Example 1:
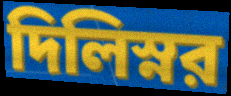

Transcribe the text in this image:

দিলিস্নর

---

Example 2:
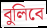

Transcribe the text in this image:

বুলিবে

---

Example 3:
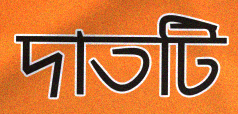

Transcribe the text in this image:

দাতটি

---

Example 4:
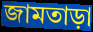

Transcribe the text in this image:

জামতাড়া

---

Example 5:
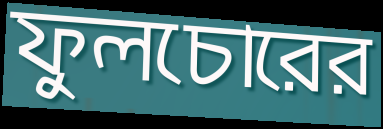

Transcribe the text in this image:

ফুলচোরের